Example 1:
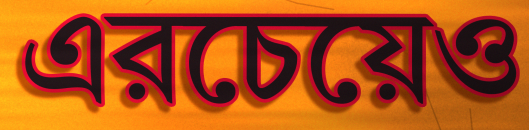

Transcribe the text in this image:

এরচেয়েও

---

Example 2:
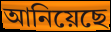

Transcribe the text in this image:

আনিয়েছে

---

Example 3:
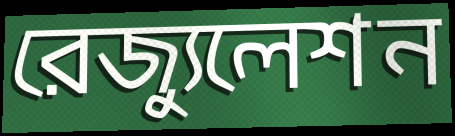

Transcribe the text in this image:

রেজ্যুলেশন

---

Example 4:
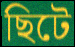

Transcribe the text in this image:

ছিটে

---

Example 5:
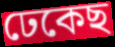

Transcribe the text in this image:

ঢেকেছ